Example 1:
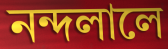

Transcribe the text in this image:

নন্দলালে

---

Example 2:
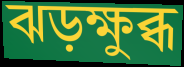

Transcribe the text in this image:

ঝড়ক্ষুব্ধ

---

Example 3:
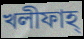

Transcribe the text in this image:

খলীফাহ্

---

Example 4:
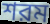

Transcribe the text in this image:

শরম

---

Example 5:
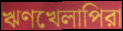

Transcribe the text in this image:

ঋণখেলাপিরা